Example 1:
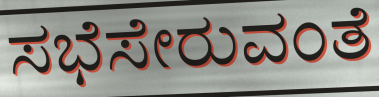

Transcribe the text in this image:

ಸಭೆಸೇರುವಂತೆ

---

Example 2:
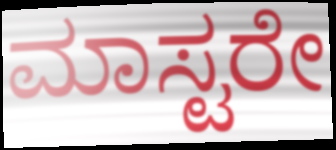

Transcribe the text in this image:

ಮಾಸ್ಟರೇ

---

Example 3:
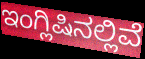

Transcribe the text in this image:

ಇಂಗ್ಲಿಷಿನಲ್ಲಿವೆ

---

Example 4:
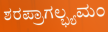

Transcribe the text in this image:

ಶರಪ್ರಾಗಲ್ಭ್ಯಮಂ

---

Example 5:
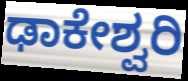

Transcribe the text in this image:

ಢಾಕೇಶ್ವರಿ